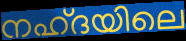
നഹ്ദയിലെ